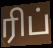
ரிப்